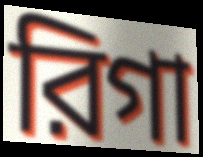
রিগা